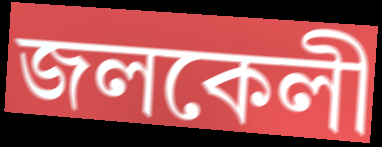
জলকেলী